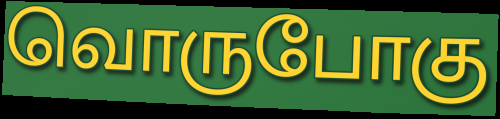
வொருபோகு